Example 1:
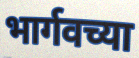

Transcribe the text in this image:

भार्गवच्या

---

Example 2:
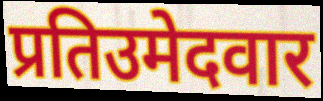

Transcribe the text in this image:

प्रतिउमेदवार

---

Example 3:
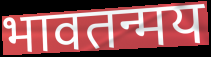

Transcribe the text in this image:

भावतन्मय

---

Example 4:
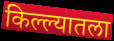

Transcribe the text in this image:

किल्ल्यातला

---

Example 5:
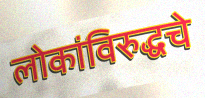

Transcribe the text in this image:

लोकांविरुद्धचे